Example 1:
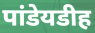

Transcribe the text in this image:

पांडेयडीह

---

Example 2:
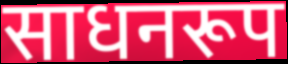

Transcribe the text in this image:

साधनरूप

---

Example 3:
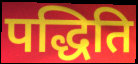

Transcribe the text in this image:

पद्धिति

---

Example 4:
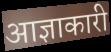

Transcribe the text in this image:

आज्ञाकारी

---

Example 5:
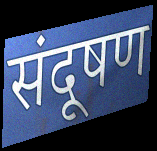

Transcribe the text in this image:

संदूषण